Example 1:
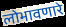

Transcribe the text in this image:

लोभावणारे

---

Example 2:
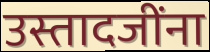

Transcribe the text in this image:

उस्तादजींना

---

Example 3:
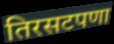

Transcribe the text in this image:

तिरसटपणा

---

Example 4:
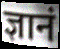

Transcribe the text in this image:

ज्ञानं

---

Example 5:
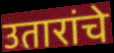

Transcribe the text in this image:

उतारांचे